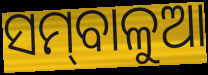
ସମ୍‌ବାଳୁଆ